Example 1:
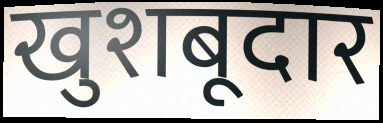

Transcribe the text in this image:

खुशबूदार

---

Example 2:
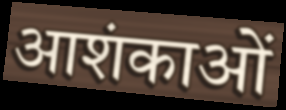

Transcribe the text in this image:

आशंकाओं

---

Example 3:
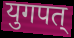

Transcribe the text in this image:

युगपत्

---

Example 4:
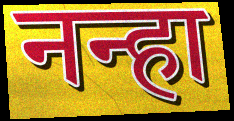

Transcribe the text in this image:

नन्हा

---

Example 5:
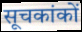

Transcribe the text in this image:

सूचकांकों